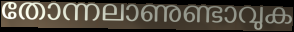
തോന്നലാണുണ്ടാവുക